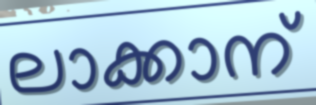
ലാക്കാന്